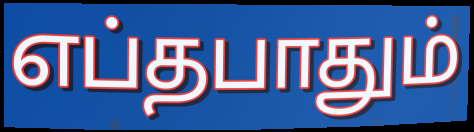
எப்தபாதும்